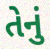
તેનું